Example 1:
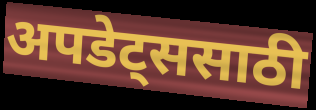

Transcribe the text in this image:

अपडेट्ससाठी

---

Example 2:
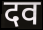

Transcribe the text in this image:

दव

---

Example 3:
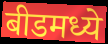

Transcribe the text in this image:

बीडमध्ये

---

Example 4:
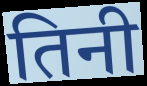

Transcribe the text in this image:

तिनी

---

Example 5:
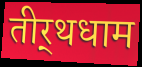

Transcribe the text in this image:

तीर्थधाम